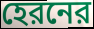
হেরনের